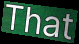
That